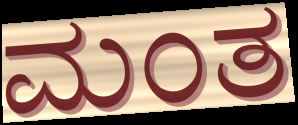
ಮಂತ